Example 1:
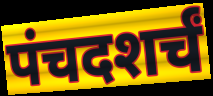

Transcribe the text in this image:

पंचदशर्चं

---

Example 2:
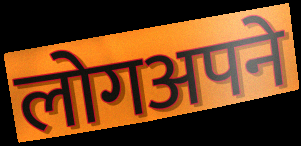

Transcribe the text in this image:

लोगअपने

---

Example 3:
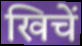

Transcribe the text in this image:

खिचें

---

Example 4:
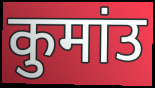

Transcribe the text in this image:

कुमांउ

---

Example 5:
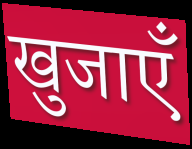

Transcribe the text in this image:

खुजाएँ